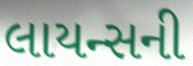
લાયન્સની